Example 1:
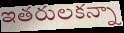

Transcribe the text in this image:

ఇతరులకన్నా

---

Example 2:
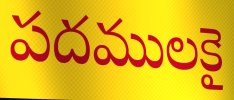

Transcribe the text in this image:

పదములకై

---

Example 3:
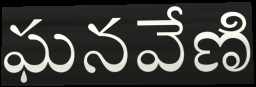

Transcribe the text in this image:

ఘనవేణి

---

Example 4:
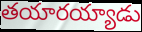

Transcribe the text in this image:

తయారయ్యాడు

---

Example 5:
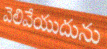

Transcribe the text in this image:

వెలివేయుదును